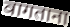
वागताना